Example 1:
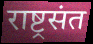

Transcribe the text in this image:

राष्ट्रसंत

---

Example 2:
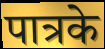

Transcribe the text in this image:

पात्रके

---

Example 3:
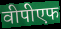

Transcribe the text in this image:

वीपीएफ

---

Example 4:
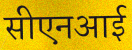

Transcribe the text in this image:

सीएनआई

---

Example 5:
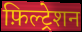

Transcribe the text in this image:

फ़िल्ट्रेशन